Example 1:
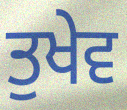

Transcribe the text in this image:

ਤੁਖੇਵ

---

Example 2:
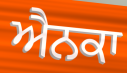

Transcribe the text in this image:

ਐਨਕਾ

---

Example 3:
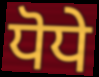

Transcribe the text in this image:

ਧੋਧੇ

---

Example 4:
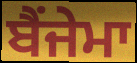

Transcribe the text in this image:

ਬੈਂਜੇਮਾ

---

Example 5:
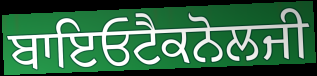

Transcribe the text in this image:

ਬਾਇਓਟੈਕਨੋਲਜੀ